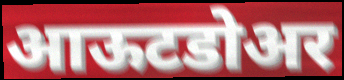
आऊटडोअर